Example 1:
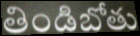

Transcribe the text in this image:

తిండిబోతు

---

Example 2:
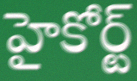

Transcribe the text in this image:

హైకోర్ట్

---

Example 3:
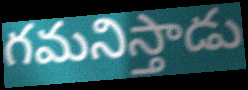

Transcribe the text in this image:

గమనిస్తాడు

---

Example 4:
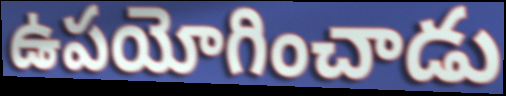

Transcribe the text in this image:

ఉపయోగించాడు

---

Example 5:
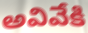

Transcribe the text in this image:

అవివేకి